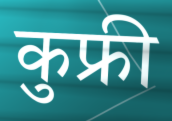
कुफ्री